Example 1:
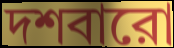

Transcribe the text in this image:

দশবারো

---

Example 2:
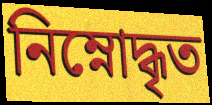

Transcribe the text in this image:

নিম্নোদ্ধৃত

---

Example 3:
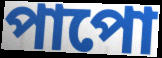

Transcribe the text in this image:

পাপো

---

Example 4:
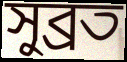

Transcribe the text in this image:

সুব্রত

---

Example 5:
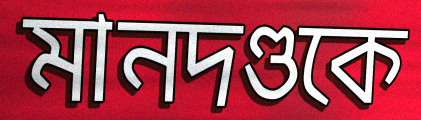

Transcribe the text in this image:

মানদণ্ডকে